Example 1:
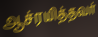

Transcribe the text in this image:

ஆச்ரயித்தவர்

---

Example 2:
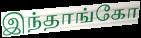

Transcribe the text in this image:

இந்தாங்கோ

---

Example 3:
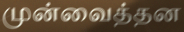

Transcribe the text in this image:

முன்வைத்தன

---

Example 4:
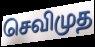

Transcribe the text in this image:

செவிமுத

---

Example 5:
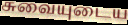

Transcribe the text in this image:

சுவையுடைய